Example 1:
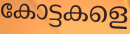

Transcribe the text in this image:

കോട്ടകളെ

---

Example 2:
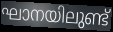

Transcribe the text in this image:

ഘാനയിലുണ്ട്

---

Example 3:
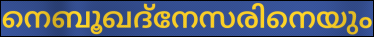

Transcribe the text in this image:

നെബൂഖദ്നേസരിനെയും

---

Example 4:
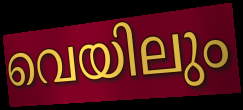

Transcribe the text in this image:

വെയിലും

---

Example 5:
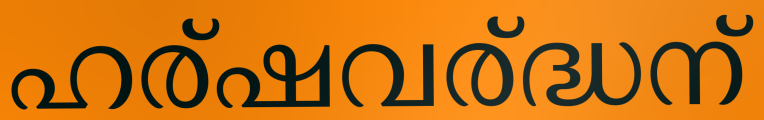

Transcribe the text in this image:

ഹര്ഷവര്ദ്ധന്